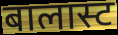
बालास्ट